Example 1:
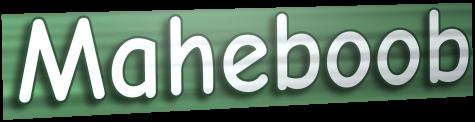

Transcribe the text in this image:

Maheboob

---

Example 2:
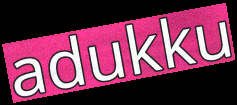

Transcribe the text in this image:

adukku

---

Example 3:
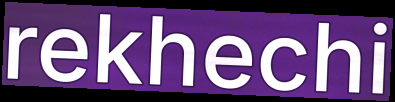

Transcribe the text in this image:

rekhechi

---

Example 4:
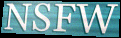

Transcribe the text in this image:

NSFW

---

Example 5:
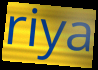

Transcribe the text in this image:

riya